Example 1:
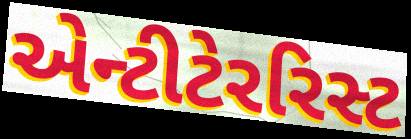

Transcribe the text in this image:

એન્ટીટેરરિસ્ટ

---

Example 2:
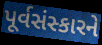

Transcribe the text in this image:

પૂર્વસંસ્કારને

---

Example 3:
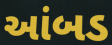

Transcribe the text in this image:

આંબડ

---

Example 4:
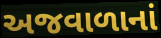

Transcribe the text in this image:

અજવાળાનાં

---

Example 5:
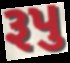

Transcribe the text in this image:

રૂપુ